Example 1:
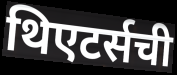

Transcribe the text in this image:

थिएटर्सची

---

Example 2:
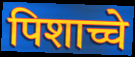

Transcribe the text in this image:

पिशाच्चे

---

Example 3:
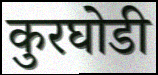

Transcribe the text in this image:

कुरघोडी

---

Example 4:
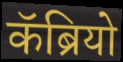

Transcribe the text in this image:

कॅब्रियो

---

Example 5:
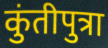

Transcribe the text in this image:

कुंतीपुत्रा